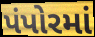
પંપોરમાં